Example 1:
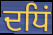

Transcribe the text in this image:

ਦਧਿਂ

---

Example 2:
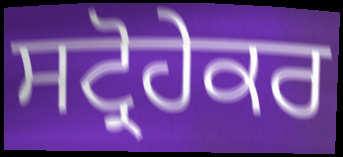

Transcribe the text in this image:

ਸਟ੍ਰੋਹੇਕਰ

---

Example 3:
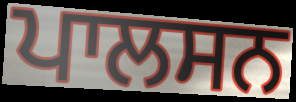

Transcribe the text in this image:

ਪਾਲਸਨ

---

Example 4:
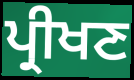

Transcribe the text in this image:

ਪ੍ਰੀਖਣ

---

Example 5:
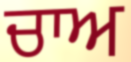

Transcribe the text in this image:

ਚਾਅ